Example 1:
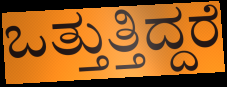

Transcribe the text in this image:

ಒತ್ತುತ್ತಿದ್ದರೆ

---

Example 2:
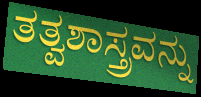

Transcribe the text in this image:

ತತ್ವಶಾಸ್ತ್ರವನ್ನು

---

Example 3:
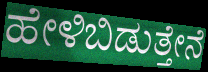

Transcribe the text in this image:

ಹೇಳಿಬಿಡುತ್ತೇನೆ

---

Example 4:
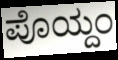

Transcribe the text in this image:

ಪೊಯ್ದಂ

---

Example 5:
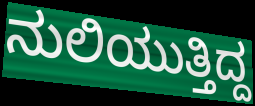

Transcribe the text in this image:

ನುಲಿಯುತ್ತಿದ್ದ